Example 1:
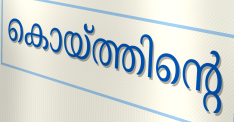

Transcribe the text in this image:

കൊയ്ത്തിന്റെ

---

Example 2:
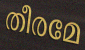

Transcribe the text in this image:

തീരമേ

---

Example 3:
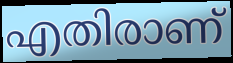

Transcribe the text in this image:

എതിരാണ്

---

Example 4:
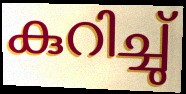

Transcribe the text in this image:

കുറിച്ചു്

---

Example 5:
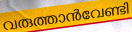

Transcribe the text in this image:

വരുത്താൻവേണ്ടി